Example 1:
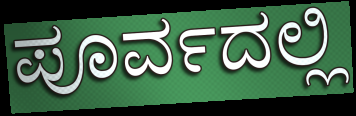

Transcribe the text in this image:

ಪೂರ್ವದಲ್ಲಿ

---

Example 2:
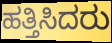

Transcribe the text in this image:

ಹತ್ತಿಸಿದರು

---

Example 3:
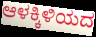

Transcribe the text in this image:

ಆಳಕ್ಕಿಳಿಯದ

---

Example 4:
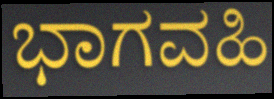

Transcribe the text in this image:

ಭಾಗವಹಿ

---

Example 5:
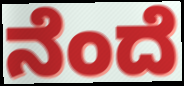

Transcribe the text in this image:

ನೆಂದೆ